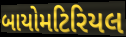
બાયોમટિરિયલ